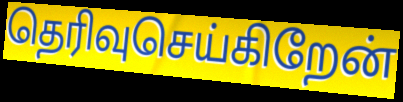
தெரிவுசெய்கிறேன்